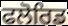
ਫਲੋਰਿਡ